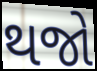
થજો